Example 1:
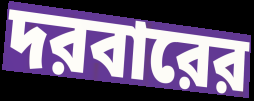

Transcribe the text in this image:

দরবারের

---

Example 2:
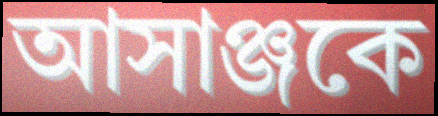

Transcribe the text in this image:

আসাঞ্জকে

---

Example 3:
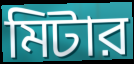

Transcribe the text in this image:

মিটার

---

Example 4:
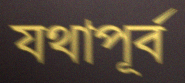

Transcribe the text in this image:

যথাপূর্ব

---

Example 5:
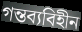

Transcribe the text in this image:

গন্তব্যবিহীন